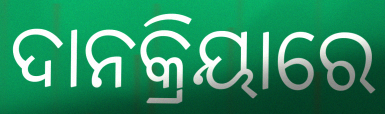
ଦାନକ୍ରିୟାରେ